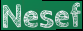
Nesef